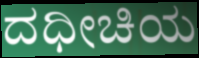
ದಧೀಚಿಯ